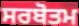
ਸਰਬੋਤਮ